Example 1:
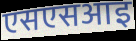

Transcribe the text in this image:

एसएसआइ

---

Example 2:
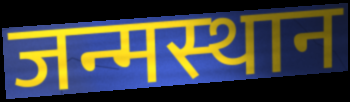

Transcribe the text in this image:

जन्मस्थान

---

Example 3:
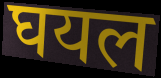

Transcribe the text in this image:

घयल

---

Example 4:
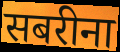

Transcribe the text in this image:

सबरीना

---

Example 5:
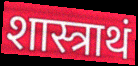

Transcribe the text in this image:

शास्त्राथं